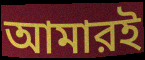
আমারই